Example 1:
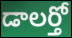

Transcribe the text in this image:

డాలర్తో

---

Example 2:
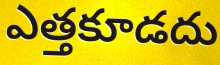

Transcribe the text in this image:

ఎత్తకూడదు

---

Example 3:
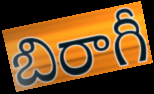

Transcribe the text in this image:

బిరాగీ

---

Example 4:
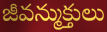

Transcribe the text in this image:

జీవన్ముక్తులు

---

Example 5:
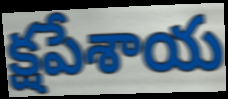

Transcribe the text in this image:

క్షపేశాయ